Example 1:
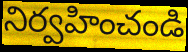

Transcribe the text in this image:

నిర్వహించండి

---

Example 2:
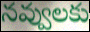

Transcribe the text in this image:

నవ్వులకు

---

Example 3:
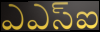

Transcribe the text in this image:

ఎఎస్ఐ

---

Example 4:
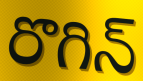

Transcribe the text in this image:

రొగిన్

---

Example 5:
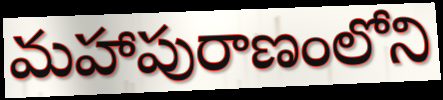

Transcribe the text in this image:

మహాపురాణంలోని